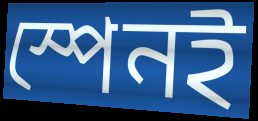
স্পেনই